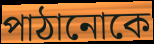
পাঠানোকে